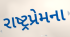
રાષ્ટ્રપ્રેમના